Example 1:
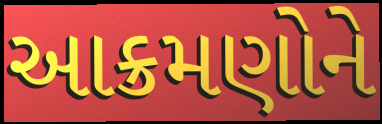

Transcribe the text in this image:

આક્રમણોને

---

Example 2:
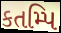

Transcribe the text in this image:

કતમ્પિ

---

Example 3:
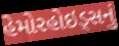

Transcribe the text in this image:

હેમોરહોઇડ્સનું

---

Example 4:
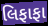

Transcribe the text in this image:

લિફાફા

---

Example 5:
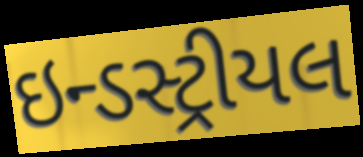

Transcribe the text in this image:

ઇન્ડસ્ટ્રીયલ